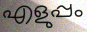
എളുപ്പം